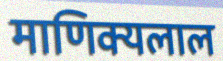
माणिक्यलाल